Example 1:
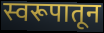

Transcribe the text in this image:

स्वरूपातून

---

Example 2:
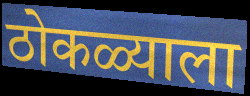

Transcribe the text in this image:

ठोकळ्याला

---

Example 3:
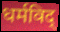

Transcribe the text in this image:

धर्मविद्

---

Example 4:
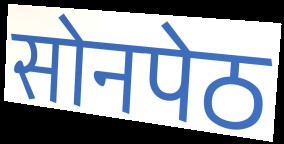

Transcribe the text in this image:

सोनपेठ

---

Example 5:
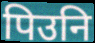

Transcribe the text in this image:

पिउनि